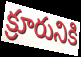
క్రూరునికి